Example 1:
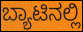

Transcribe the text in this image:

ಬ್ಯಾಟಿನಲ್ಲಿ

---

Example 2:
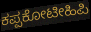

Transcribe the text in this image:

ಕಪ್ಪಕೋಟೀಹಿಪಿ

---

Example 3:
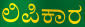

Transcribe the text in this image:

ಲಿಪಿಕಾರ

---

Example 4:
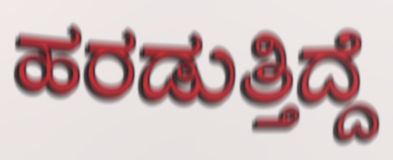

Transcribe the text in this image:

ಹರಡುತ್ತಿದ್ದೆ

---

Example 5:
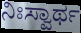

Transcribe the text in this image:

ನಿಃಸ್ವಾರ್ಥ